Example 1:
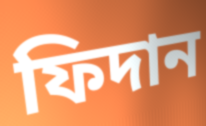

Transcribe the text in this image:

ফিদান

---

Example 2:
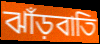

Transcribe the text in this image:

ঝাঁড়বাতি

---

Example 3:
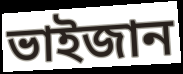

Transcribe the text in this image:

ভাইজান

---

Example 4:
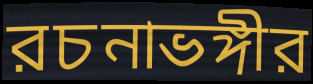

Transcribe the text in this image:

রচনাভঙ্গীর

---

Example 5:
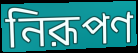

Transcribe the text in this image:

নিরূপণ